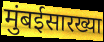
मुंबईसारख्या